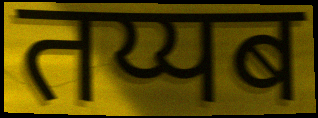
तय्यब